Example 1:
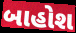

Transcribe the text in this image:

બાહોશ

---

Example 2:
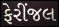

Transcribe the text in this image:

ફેરીંજલ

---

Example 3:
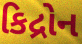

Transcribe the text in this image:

કિદ્રોન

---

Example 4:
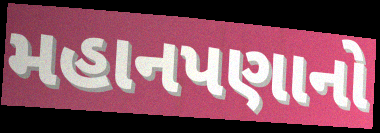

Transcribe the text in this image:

મહાનપણાનો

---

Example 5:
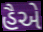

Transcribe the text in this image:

હૈએ